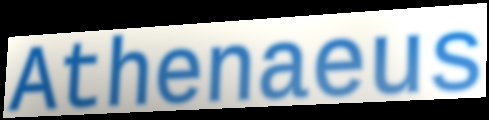
Athenaeus